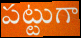
పట్టుగా